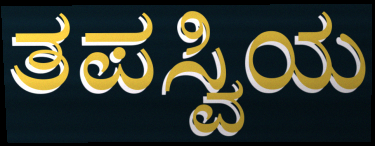
ತಪಸ್ವಿಯ